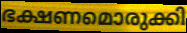
ഭക്ഷണമൊരുക്കി